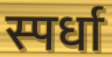
स्पर्धा